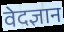
वेदज्ञान